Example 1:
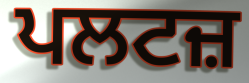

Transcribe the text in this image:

ਪਲਟਜ਼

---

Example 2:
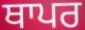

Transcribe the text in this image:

ਥਾਪਰ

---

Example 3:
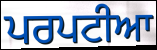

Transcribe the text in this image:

ਪਰਪਟੀਆ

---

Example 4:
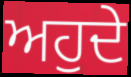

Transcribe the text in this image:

ਅਹੁਦੇ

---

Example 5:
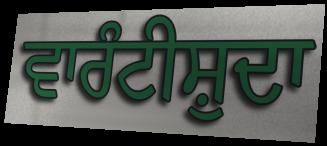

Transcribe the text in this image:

ਵਾਰੰਟੀਸ਼ੁਦਾ